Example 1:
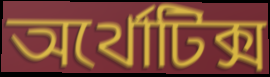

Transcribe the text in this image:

অর্থোটিক্স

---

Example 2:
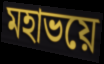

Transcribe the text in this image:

মহাভয়ে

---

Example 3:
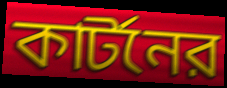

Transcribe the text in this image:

কার্টনের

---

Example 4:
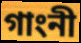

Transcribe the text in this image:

গাংনী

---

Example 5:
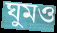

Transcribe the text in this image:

ঘুমও